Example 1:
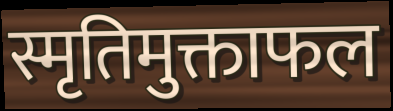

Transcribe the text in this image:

स्मृतिमुक्ताफल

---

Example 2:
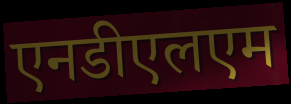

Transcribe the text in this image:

एनडीएलएम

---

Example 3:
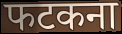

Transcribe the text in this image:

फटकना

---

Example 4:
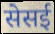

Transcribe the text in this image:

सेसई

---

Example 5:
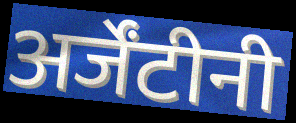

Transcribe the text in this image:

अर्जेंटीनी